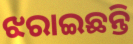
ଝରାଇଛନ୍ତି